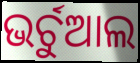
ଭର୍ଚୁଆଲ